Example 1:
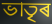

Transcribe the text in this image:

ভাতৃৰ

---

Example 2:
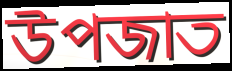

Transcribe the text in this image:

উপজাত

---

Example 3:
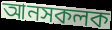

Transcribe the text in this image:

আনসকলক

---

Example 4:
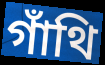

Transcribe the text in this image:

গাঁথি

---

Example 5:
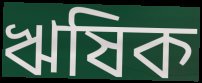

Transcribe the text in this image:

ঋষিক